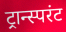
ट्रान्स्परंट